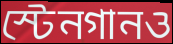
স্টেনগানও